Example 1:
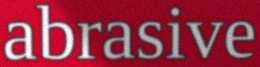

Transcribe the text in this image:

abrasive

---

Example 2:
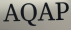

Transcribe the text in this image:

AQAP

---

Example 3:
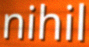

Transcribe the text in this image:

nihil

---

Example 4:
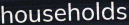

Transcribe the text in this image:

households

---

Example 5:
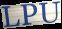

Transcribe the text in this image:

LPU